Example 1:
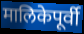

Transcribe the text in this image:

मालिकेपूर्वी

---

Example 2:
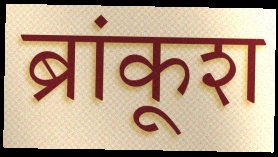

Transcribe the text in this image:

ब्रांकूश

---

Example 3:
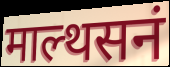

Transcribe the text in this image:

माल्थसनं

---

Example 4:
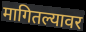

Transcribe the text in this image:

मागितल्यावर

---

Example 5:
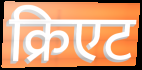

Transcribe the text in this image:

क्रिएट